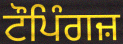
ਟੌਪਿੰਗਜ਼